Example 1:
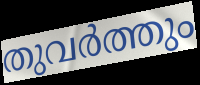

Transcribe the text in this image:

തുവർത്തും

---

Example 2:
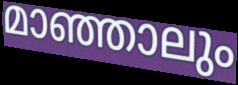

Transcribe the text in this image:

മാഞ്ഞാലും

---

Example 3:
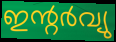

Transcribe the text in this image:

ഇന്റർവ്യു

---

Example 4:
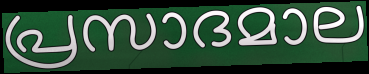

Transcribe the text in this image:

പ്രസാദമാല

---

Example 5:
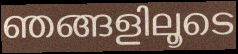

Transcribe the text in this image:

ഞങ്ങളിലൂടെ